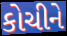
કોચીને